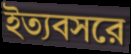
ইত্যবসরে